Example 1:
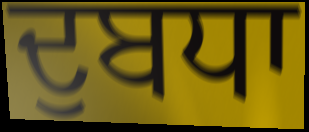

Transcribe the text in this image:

ਦੁਬਧਾ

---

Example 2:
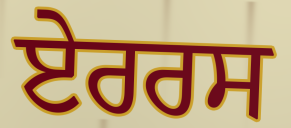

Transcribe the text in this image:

ਏਰਰਸ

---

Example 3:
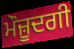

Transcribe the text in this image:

ਮੌਜ਼ੂਦਗੀ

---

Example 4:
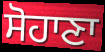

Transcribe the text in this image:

ਸੋਹਾਣਾ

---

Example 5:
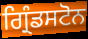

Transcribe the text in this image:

ਗ੍ਰਿੰਡਸਟੋਨ